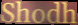
Shodh